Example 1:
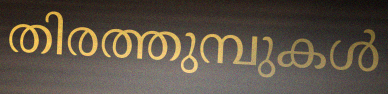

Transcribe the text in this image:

തിരത്തുമ്പുകൾ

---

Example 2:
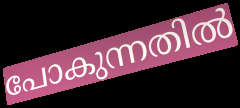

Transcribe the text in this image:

പോകുന്നതിൽ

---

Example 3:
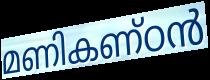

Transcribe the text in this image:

മണികണ്ഠൻ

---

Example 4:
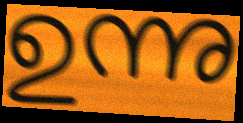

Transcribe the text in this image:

ഉന്നു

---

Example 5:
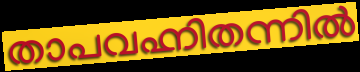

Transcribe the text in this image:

താപവഹ്നിതന്നിൽ